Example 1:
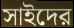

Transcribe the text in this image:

সাইদের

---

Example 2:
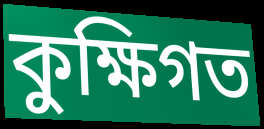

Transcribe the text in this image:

কুক্ষিগত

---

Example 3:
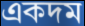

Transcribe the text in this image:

একদম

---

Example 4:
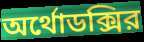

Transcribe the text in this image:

অর্থোডক্সির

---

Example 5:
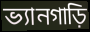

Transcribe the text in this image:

ভ্যানগাড়ি